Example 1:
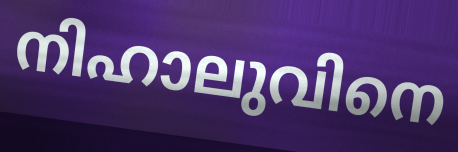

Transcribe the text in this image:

നിഹാലുവിനെ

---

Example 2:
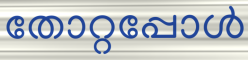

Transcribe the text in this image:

തോറ്റപ്പോൾ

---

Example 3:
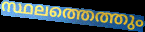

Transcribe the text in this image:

സ്ഥലത്തെത്തും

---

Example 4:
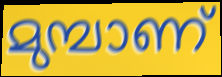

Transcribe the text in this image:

മുമ്പാണ്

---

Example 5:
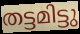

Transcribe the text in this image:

തട്ടമിട്ടു